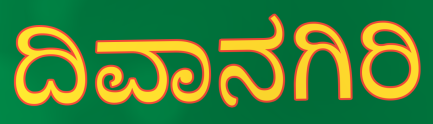
ದಿವಾನಗಿರಿ